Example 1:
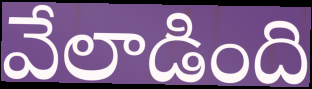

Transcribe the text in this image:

వేలాడింది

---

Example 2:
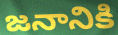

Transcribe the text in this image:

జనానికి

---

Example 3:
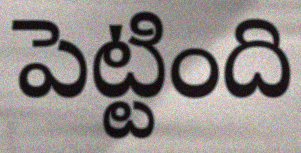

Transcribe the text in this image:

పెట్టింది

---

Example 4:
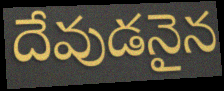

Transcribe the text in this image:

దేవుడనైన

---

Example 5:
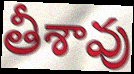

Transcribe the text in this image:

తీశావు